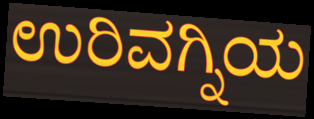
ಉರಿವಗ್ನಿಯ